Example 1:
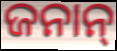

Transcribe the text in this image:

ଜନାନ୍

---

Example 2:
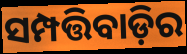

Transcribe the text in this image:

ସମ୍ପତ୍ତିବାଡ଼ିର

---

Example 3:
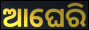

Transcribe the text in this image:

ଆଘେରି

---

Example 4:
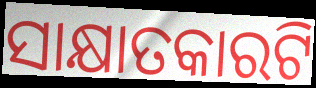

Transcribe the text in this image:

ସାକ୍ଷାତକାରଟି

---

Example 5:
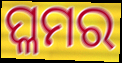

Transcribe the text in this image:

ପ୍ଳମର